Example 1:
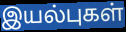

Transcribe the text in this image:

இயல்புகள்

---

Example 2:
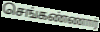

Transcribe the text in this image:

செங்கண்ணார்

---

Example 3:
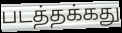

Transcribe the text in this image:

படத்தக்கது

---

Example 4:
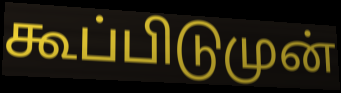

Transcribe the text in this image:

கூப்பிடுமுன்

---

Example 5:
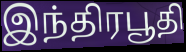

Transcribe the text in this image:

இந்திரபூதி